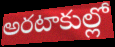
అరటాకుల్లో